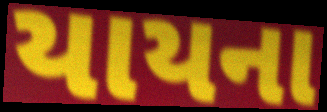
યાયના